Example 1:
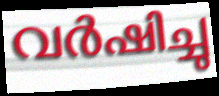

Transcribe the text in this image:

വർഷിച്ചു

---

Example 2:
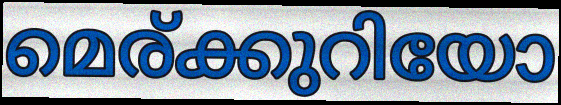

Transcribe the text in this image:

മെര്ക്കുറിയോ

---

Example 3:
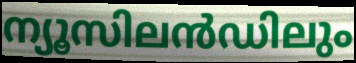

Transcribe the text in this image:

ന്യൂസിലൻഡിലും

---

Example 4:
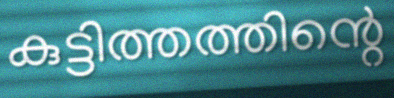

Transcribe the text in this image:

കുട്ടിത്തത്തിന്റെ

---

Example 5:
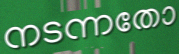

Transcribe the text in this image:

നടന്നതോ